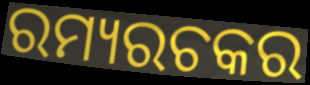
ରମ୍ୟରଚକର